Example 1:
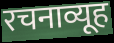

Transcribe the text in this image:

रचनाव्यूह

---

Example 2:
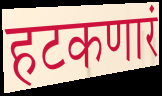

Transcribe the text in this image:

हटकणारं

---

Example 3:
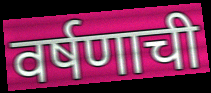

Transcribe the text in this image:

वर्षणाची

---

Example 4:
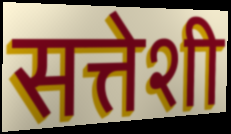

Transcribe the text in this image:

सत्तेशी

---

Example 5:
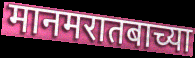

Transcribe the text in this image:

मानमरातबाच्या